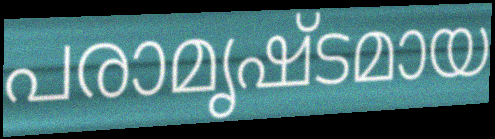
പരാമൃഷ്ടമായ